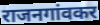
राजनगांवकर